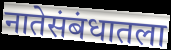
नातेसंबंधातला